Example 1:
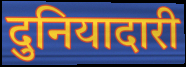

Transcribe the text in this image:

दुनियादारी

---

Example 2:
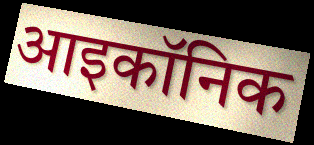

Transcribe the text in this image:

आइकॉनिक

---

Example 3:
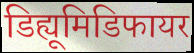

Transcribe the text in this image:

डिह्यूमिडिफायर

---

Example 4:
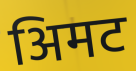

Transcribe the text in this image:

अिमट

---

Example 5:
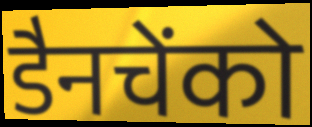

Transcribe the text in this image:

डैनचेंको